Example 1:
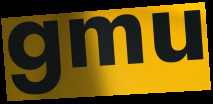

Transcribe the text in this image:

gmu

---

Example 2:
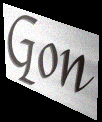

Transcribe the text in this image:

Gon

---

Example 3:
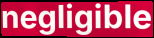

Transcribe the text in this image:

negligible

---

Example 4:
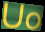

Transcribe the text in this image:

Uo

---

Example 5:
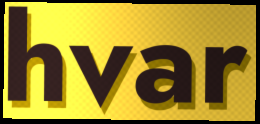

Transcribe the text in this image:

hvar